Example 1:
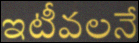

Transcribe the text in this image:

ఇటీవలనే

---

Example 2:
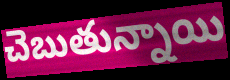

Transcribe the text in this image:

చెబుతున్నాయి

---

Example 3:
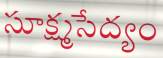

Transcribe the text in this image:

సూక్ష్మసేద్యం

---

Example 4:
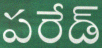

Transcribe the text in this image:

పరేడ్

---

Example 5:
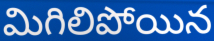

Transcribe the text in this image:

మిగిలిపోయిన